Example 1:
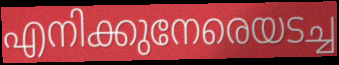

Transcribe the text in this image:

എനിക്കുനേരെയടച്ച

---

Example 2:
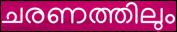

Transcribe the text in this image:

ചരണത്തിലും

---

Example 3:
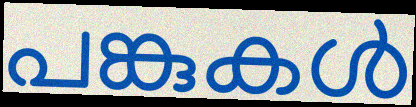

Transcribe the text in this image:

പങ്കുകൾ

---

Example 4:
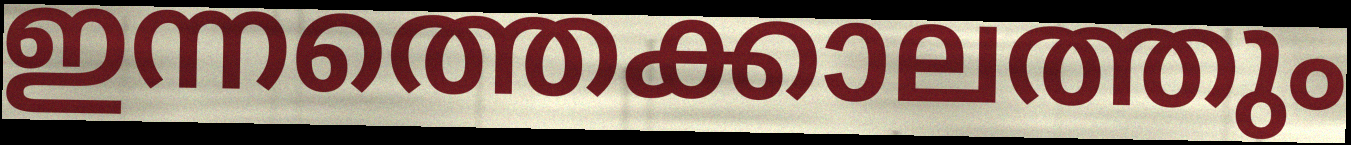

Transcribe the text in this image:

ഇന്നത്തെക്കാലത്തും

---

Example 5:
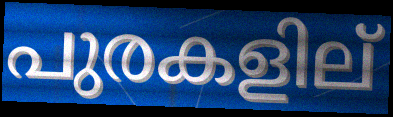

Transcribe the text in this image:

പുരകളില്